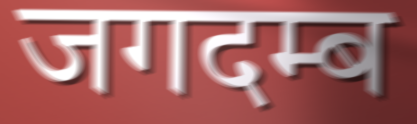
जगदम्ब